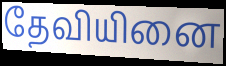
தேவியினை